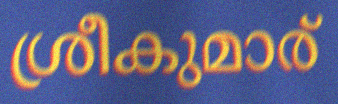
ശ്രീകുമാര്